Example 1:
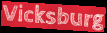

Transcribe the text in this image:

Vicksburg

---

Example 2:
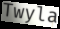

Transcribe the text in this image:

Twyla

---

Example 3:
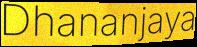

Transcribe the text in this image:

Dhananjaya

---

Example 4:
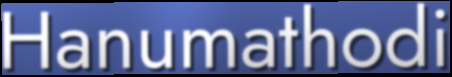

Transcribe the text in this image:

Hanumathodi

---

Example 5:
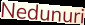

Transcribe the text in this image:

Nedunuri